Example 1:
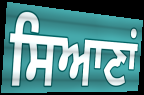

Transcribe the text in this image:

ਸਿਆਣਾਂ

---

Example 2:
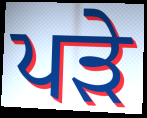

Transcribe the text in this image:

ਪੜੇ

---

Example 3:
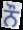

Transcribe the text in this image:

ਨੌ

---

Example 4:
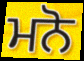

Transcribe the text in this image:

ਮਨੋ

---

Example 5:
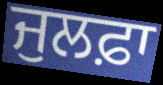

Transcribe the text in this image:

ਜੁਲਫ਼ਾ